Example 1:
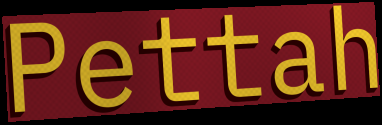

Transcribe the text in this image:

Pettah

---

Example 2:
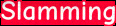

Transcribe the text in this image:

Slamming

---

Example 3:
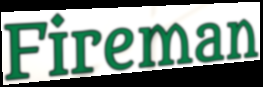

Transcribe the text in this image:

Fireman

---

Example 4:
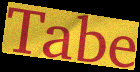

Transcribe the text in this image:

Tabe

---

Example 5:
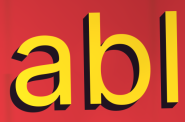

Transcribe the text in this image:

abl